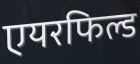
एयरफिल्ड